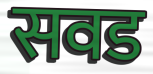
सवड